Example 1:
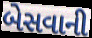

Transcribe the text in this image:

બેસવાની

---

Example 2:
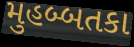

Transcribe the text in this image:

મુહબ્બતકા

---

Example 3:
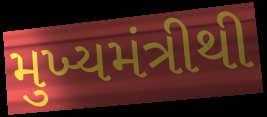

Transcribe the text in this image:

મુખ્યમંત્રીથી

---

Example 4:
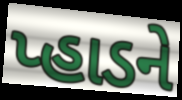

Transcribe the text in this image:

પ્હાડને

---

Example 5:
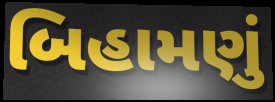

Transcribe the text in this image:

બિહામણું